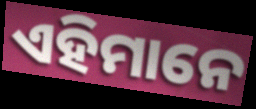
ଏହିମାନେ